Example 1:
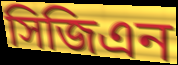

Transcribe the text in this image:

সিজিএন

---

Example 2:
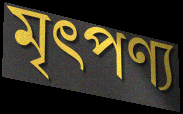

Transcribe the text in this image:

মৃৎপণ্য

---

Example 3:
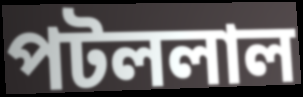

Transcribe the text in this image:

পটললাল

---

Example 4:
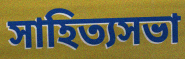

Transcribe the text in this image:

সাহিত্যসভা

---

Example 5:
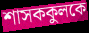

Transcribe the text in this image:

শাসককুলকে